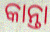
କାନ୍ତା